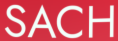
SACH